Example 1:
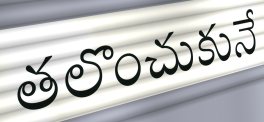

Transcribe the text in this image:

తలొంచుకునే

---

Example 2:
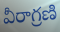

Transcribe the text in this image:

వీరాగ్రణి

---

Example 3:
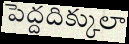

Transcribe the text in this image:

పెద్దదిక్కులా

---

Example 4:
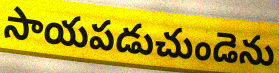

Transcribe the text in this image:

సాయపడుచుండెను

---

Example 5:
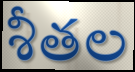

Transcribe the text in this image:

శీతల